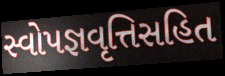
સ્વોપજ્ઞવૃત્તિસહિત